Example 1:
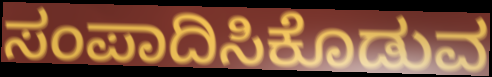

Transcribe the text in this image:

ಸಂಪಾದಿಸಿಕೊಡುವ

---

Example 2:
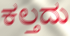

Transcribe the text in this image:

ಕಲ್ತದು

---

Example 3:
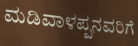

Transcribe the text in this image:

ಮಡಿವಾಳಪ್ಪನವರಿಗೆ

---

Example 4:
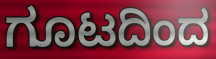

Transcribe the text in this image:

ಗೂಟದಿಂದ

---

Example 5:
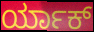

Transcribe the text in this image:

ರ್ಯಾಕ್